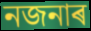
নজনাৰ